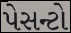
પેસન્ટો